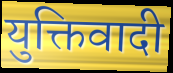
युक्तिवादी